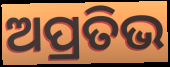
ଅପ୍ରତିଭ